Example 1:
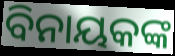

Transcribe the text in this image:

ବିନାୟକଙ୍କ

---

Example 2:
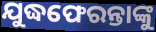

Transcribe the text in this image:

ଯୁଦ୍ଧଫେରନ୍ତାଙ୍କୁ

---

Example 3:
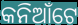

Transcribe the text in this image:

କନିଆଁଟେ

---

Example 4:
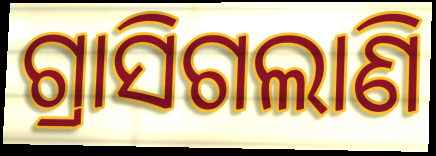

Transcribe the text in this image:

ଗ୍ରାସିଗଲାଣି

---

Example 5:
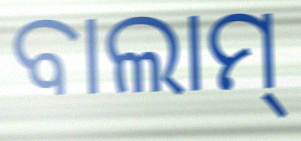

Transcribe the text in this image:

ବାଲାମ୍